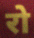
रो